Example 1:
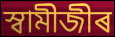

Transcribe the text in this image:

স্বামীজীৰ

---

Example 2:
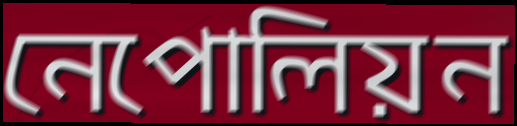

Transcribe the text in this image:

নেপোলিয়ন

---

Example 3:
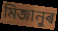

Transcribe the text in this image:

মিজানুৰ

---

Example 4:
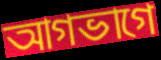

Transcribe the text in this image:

আগভাগে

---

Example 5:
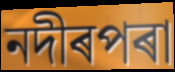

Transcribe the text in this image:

নদীৰপৰা